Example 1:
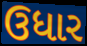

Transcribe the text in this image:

ઉધાર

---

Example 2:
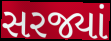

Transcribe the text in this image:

સરજ્યાં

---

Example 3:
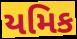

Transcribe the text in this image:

યમિક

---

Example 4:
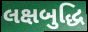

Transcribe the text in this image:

લક્ષબુદ્ધિ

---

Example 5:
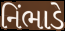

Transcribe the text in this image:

નિંભાડે